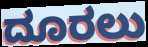
ದೂರಲು